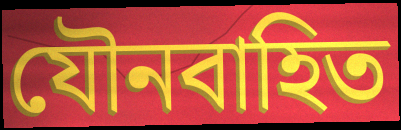
যৌনবাহিত